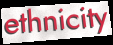
ethnicity